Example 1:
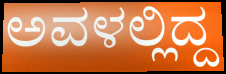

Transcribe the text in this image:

ಅವಳಲ್ಲಿದ್ದ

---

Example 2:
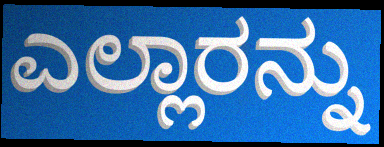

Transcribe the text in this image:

ಎಲ್ಲಾರನ್ನು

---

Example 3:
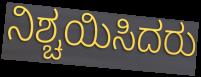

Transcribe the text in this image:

ನಿಶ್ಚಯಿಸಿದರು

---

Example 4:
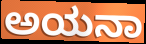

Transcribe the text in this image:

ಅಯನಾ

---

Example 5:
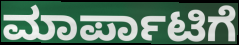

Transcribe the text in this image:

ಮಾರ್ಪಾಟಿಗೆ